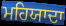
ਮਹਿਯਾਦਾ